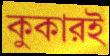
কুকারই